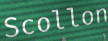
Scollon